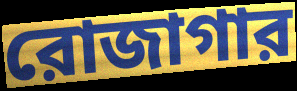
রোজাগার